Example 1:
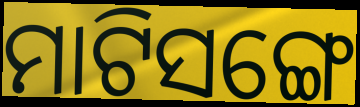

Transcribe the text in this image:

ମାଟିସଙ୍ଗେ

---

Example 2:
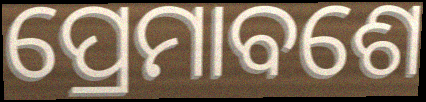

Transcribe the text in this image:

ପ୍ରେମାବଶେ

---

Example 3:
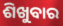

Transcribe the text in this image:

ଶିଖୁବାର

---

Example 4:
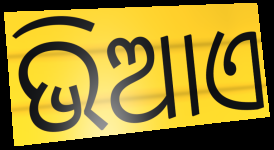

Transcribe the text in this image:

ଭିଆଏ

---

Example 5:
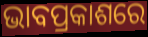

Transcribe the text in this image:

ଭାବପ୍ରକାଶରେ